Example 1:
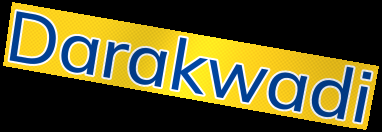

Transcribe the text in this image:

Darakwadi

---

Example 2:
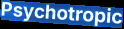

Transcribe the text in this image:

Psychotropic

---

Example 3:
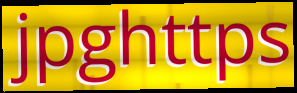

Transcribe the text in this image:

jpghttps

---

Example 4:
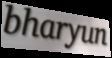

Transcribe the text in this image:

bharyun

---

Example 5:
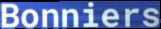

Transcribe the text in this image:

Bonniers